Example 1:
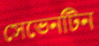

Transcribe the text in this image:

সেভেনটিন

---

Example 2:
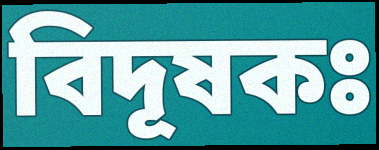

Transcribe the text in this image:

বিদূষকঃ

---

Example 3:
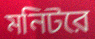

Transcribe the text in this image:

মনিটরে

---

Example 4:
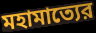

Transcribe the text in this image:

মহামাত্যের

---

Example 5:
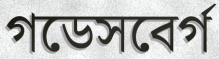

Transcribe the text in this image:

গডেসবের্গ